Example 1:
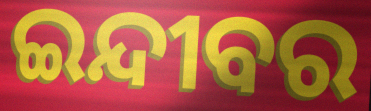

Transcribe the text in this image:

ଇନ୍ଦୀବର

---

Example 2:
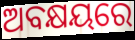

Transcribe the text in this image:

ଅବକ୍ଷୟରେ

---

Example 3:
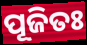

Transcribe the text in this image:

ପୂଜିତଃ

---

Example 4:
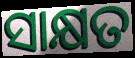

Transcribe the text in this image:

ସାକ୍ଷତ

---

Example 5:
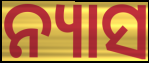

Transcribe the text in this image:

ନ୍ୟାସ